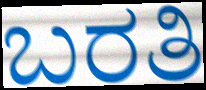
ಬರತಿ